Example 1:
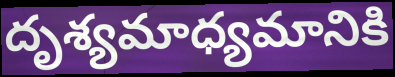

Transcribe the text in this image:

దృశ్యమాధ్యమానికి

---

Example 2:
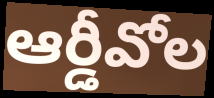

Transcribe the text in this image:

ఆర్డీవోల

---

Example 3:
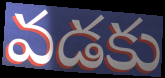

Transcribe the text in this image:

వడకు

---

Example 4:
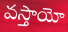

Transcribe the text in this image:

వస్తాయో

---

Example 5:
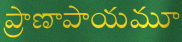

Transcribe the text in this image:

ప్రాణాపాయమూ